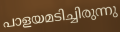
പാളയമടിച്ചിരുന്നു